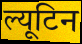
ल्यूटिन